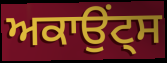
ਅਕਾਉਂਟ੍ਸ